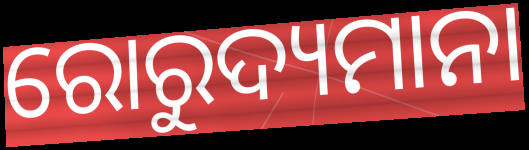
ରୋରୁଦ୍ୟମାନା